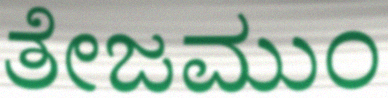
ತೇಜಮುಂ